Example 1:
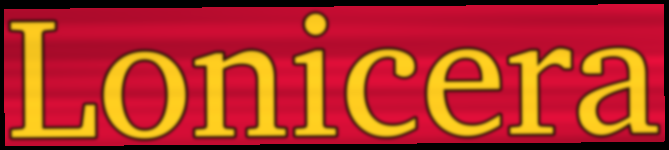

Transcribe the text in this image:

Lonicera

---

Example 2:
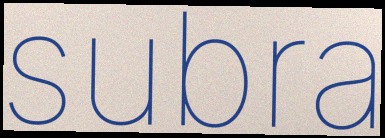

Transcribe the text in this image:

subra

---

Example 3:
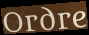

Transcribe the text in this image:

Ordre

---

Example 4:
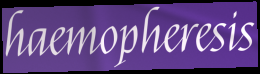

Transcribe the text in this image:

haemopheresis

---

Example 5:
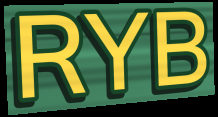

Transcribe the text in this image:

RYB